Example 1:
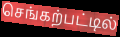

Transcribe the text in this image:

செங்கற்பட்டில்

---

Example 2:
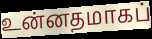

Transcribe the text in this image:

உன்னதமாகப்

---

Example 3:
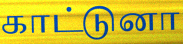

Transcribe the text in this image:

காட்டுனா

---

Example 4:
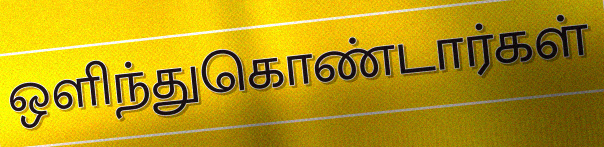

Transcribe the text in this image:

ஒளிந்துகொண்டார்கள்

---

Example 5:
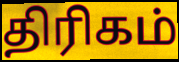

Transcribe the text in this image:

திரிகம்